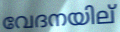
വേദനയില്